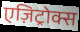
एज़िट्रोक्स